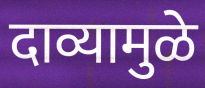
दाव्यामुळे